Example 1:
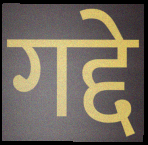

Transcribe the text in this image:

गद्दे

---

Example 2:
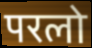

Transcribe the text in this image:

परलो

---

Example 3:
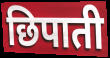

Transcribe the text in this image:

छिपाती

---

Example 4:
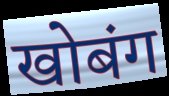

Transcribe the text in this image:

खोबंग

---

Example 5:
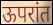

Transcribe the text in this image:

ऊपरांत